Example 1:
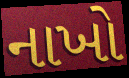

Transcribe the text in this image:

નાખો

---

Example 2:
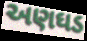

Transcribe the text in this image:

અણઘડ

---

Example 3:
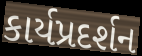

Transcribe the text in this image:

કાર્યપ્રદર્શન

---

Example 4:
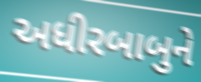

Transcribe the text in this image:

અધીરબાબુને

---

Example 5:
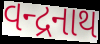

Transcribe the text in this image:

વન્દ્રનાથ